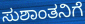
ಸುಶಾಂತನಿಗೆ